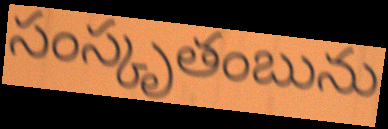
సంస్కృతంబును